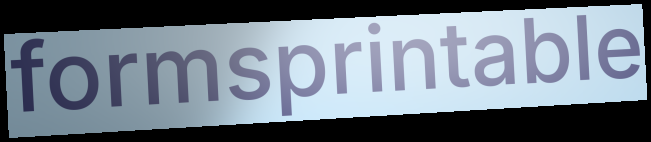
formsprintable